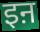
इऩ